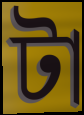
টা